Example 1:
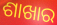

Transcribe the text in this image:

ଶାଖାର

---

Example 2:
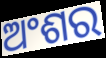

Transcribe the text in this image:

ଅଂଶର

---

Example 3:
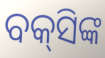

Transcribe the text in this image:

ବକ୍‌ସିଙ୍କ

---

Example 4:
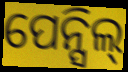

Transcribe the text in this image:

ପେନ୍ସିଲ୍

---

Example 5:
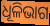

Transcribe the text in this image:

ଧୂଳିଭାଗ